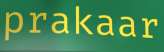
prakaar